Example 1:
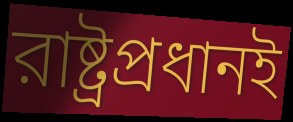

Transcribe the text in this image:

রাষ্ট্রপ্রধানই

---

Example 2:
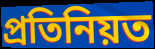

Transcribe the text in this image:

প্রতিনিয়ত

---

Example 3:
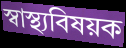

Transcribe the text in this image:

স্বাস্থ্যবিষয়ক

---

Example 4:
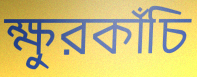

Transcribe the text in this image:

ক্ষুরকাঁচি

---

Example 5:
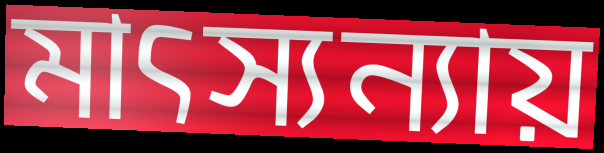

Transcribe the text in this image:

মাৎস্যন্যায়